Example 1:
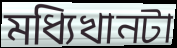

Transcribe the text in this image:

মধ্যিখানটা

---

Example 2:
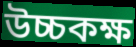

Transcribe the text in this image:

উচ্চকক্ষ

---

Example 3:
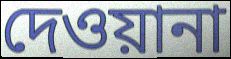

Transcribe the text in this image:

দেওয়ানা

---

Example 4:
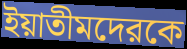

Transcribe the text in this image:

ইয়াতীমদেরকে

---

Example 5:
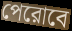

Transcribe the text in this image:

পেরোবে